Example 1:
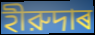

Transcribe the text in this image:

হীৰুদাৰ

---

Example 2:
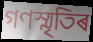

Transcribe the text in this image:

গণস্মৃতিৰ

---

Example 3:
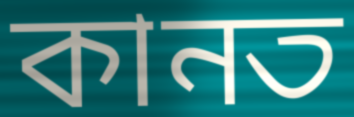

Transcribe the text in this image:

কানত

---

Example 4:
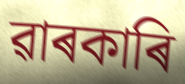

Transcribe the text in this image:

ৱাৰকাৰি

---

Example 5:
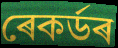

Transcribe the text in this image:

ৰেকৰ্ডৰ